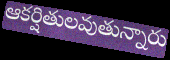
ఆకర్షితులవుతున్నారు